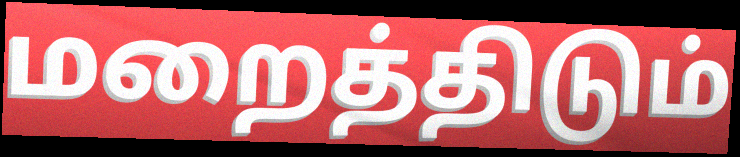
மறைத்திடும்